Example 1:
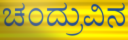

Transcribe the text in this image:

ಚಂದ್ರುವಿನ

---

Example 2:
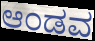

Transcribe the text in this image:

ಆಂಡವ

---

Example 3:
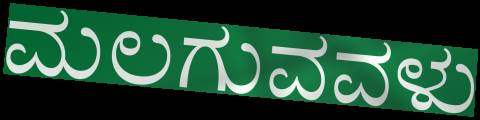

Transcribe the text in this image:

ಮಲಗುವವಳು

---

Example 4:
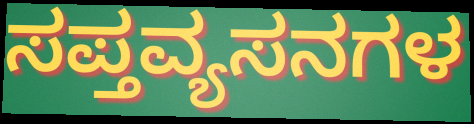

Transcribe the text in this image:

ಸಪ್ತವ್ಯಸನಗಳ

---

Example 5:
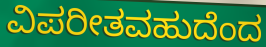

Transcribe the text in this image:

ವಿಪರೀತವಹುದೆಂದ